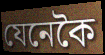
যেনেকৈ